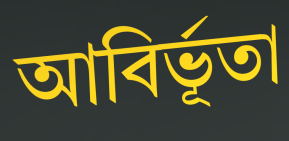
আবির্ভূতা